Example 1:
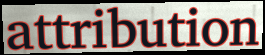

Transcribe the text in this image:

attribution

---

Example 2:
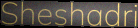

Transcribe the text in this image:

Sheshadri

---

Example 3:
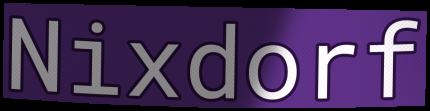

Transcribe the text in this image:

Nixdorf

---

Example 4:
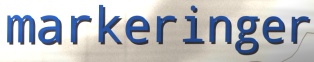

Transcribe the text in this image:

markeringer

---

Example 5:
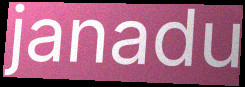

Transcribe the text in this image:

janadu